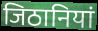
जिठानियां